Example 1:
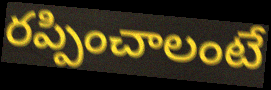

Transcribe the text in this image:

రప్పించాలంటే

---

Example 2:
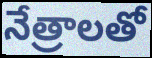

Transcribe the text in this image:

నేత్రాలతో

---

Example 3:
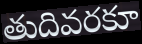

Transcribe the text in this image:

తుదివరకూ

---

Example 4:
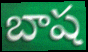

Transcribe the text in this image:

బాష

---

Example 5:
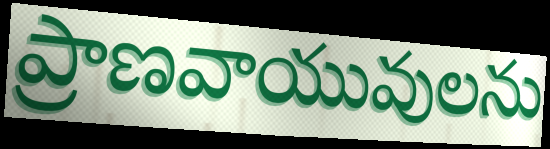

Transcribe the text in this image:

ప్రాణవాయువులను